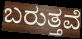
ಬರುತ್ತವೆ